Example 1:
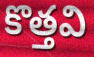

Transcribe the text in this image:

కొత్తవి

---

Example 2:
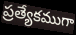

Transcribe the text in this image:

ప్రత్యేకముగా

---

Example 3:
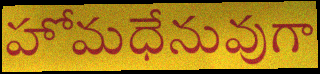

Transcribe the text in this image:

హోమధేనువుగా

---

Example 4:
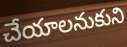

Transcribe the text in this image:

చేయాలనుకుని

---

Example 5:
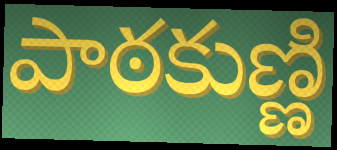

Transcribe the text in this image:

పాఠకుణ్ణి